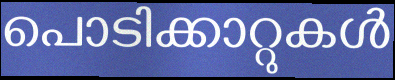
പൊടിക്കാറ്റുകൾ